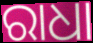
ରାଧା